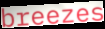
breezes